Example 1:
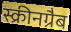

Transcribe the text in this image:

स्क्रीनग्रैब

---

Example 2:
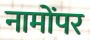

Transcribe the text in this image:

नामोंपर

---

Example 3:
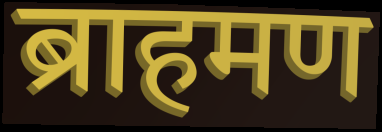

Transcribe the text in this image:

ब्राहमण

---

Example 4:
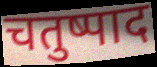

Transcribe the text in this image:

चतुष्पाद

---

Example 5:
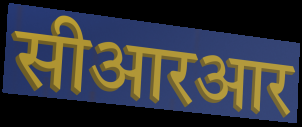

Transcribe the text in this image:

सीआरआर